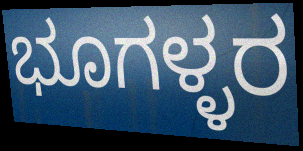
ಭೂಗಳ್ಳರ